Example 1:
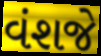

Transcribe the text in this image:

વંશજે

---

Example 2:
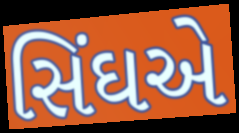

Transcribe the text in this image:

સિંઘએ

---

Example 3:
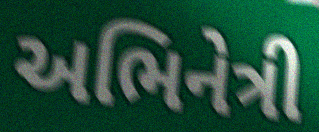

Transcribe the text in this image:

અભિનેત્રી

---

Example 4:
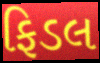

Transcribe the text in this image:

ફિડલ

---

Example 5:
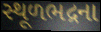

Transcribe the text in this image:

સ્થૂળભદ્રના